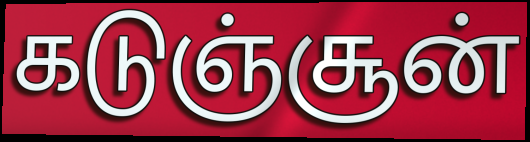
கடுஞ்சூன்